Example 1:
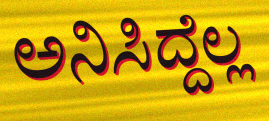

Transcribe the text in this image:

ಅನಿಸಿದ್ದೆಲ್ಲ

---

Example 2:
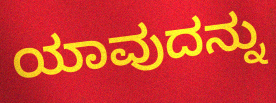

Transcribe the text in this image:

ಯಾವುದನ್ನು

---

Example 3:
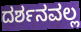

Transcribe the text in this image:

ದರ್ಶನವಲ್ಲ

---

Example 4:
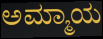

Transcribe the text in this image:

ಅಮ್ಮಾಯ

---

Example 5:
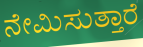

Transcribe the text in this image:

ನೇಮಿಸುತ್ತಾರೆ